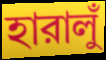
হারালুঁ